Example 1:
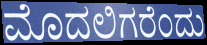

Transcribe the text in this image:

ಮೊದಲಿಗರೆಂದು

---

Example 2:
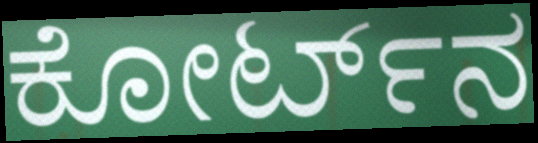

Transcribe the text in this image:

ಕೋರ್ಟ್‍ನ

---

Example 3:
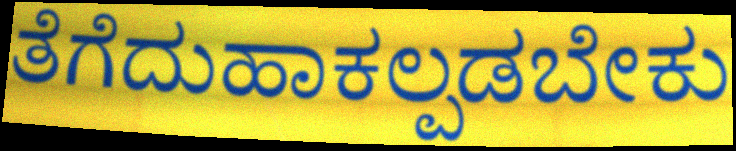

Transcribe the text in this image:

ತೆಗೆದುಹಾಕಲ್ಪಡಬೇಕು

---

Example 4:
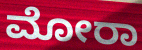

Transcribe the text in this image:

ಮೋರಾ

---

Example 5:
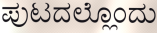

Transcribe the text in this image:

ಪುಟದಲ್ಲೊಂದು